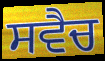
ਸਵੈਚ